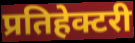
प्रतिहेक्टरी